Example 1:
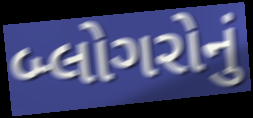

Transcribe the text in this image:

બ્લોગરોનું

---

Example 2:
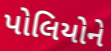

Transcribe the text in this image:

પોલિયોને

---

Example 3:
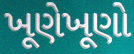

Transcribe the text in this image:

ખૂણેખૂણો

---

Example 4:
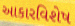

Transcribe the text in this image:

આકારવિશેષ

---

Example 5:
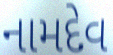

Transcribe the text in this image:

નામદેવ